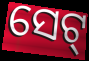
ସେଟ୍